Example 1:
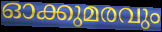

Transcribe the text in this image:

ഓക്കുമരവും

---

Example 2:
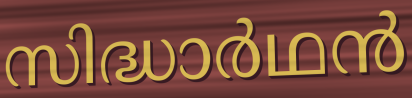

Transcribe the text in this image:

സിദ്ധാർഥൻ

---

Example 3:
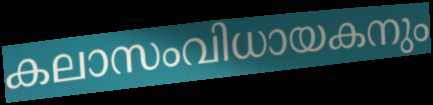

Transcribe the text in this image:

കലാസംവിധായകനും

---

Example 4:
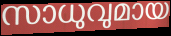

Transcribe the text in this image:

സാധുവുമായ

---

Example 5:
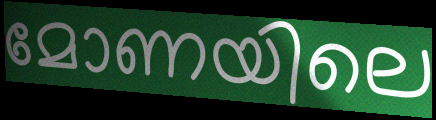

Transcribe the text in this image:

മോണയിലെ